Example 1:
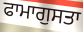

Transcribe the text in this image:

ਫਾਮਾਗੁਸਤਾ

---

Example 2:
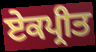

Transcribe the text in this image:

ਏਕਪ੍ਰੀਤ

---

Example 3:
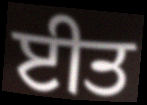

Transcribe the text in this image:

ਈਤ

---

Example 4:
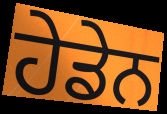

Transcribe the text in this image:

ਹੇਡੇਨ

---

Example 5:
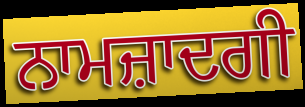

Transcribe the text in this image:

ਨਾਮਜ਼ਾਦਗੀ